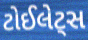
ટોઈલેટ્સ